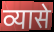
व्यासे